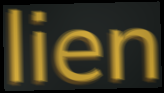
lien